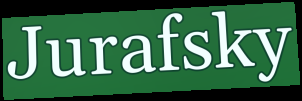
Jurafsky